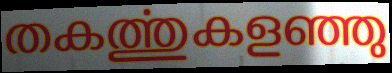
തകൎത്തുകളഞ്ഞു